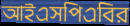
আইএসপিএবির